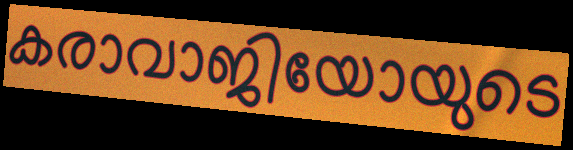
കരാവാജിയോയുടെ